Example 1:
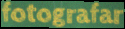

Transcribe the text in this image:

fotografar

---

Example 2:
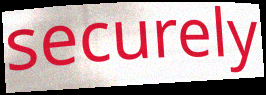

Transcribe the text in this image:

securely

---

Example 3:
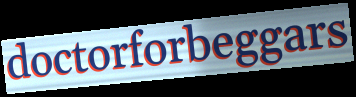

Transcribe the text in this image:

doctorforbeggars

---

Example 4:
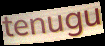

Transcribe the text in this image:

tenugu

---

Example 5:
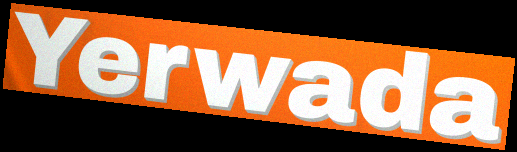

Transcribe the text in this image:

Yerwada